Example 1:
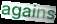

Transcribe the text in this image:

agains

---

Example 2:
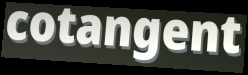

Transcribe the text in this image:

cotangent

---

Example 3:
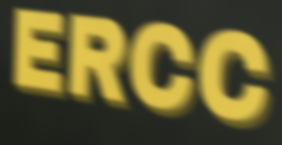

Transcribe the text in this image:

ERCC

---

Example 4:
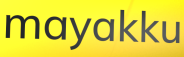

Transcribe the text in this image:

mayakku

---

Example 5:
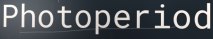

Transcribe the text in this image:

Photoperiod